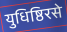
युधिष्ठिरसे